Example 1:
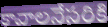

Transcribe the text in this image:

కావాలనేసరికి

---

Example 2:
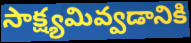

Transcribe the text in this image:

సాక్ష్యమివ్వడానికి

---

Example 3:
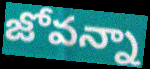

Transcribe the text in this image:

జోవన్నా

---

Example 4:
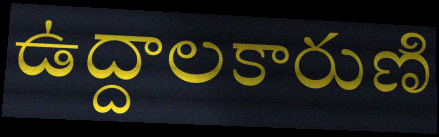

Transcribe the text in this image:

ఉద్దాలకారుణి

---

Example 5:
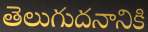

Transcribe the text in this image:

తెలుగుదనానికి